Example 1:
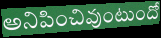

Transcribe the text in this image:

అనిపించివుంటుందో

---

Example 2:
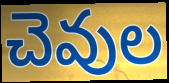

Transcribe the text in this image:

చెవుల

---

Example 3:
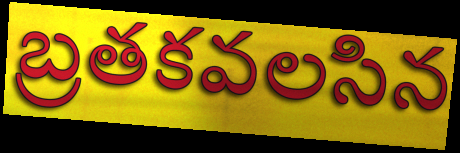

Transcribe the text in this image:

బ్రతకవలసిన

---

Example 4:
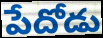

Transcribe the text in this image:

పేదోడు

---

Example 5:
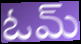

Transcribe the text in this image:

ఓమ్